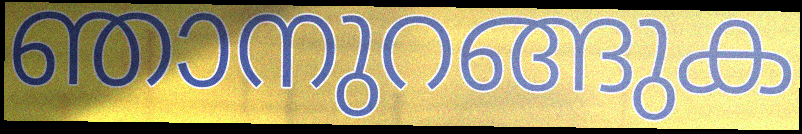
ഞാനുറങ്ങുക